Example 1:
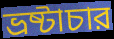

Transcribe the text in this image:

ভ্রষ্টাচার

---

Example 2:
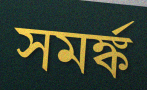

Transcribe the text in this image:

সমর্ঙ্ক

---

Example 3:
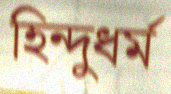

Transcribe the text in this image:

হিন্দুধর্ম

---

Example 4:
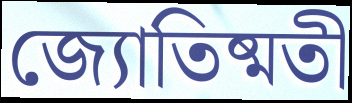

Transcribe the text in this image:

জ্যোতিষ্মতী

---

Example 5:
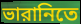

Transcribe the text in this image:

ভারানিতে